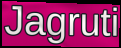
Jagruti